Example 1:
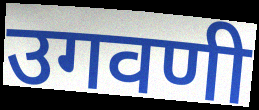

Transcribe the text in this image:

उगवणी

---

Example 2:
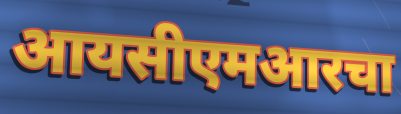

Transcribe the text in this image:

आयसीएमआरचा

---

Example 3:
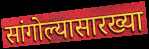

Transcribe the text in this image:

सांगोल्यासारख्या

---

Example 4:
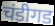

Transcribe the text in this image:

चंडीगड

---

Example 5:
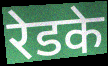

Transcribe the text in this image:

रेडके